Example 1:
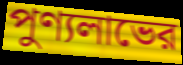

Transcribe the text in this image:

পুণ্যলাভের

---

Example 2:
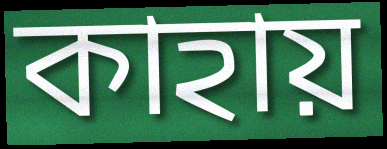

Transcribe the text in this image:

কাহায়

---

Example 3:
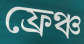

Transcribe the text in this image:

ফ্রেঞ্চ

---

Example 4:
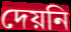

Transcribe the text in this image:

দেয়নি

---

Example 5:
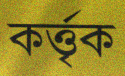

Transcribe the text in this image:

কর্ত্তৃক